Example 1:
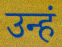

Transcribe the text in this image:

उन्हं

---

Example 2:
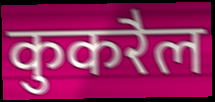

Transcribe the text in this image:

कुकरैल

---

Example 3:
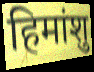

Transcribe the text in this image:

हिमांशु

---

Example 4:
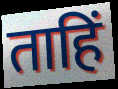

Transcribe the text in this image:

ताहिं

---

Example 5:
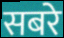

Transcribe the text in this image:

सबरे